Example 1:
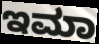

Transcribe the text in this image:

ಇಮಾ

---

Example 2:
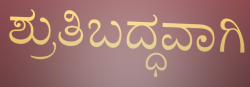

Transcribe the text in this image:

ಶ್ರುತಿಬದ್ಧವಾಗಿ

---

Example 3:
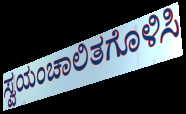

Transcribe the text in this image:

ಸ್ವಯಂಚಾಲಿತಗೊಳಿಸಿ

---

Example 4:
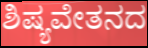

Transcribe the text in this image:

ಶಿಷ್ಯವೇತನದ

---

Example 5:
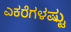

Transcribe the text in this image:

ಎಕರೆಗಳಷ್ಟು